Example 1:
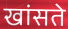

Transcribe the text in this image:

खांसते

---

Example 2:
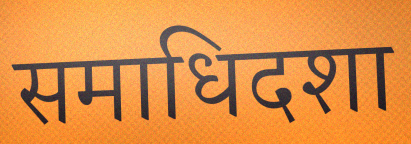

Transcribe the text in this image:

समाधिदशा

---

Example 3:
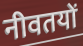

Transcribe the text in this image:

नीवतयों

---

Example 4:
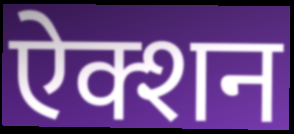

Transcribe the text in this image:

ऐक्‍शन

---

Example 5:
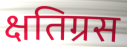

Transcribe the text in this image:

क्षतिग्रस